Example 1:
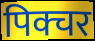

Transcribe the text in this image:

पिक्चर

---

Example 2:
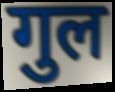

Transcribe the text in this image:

गुल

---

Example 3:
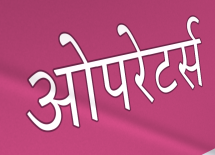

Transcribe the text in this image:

ओपरेटर्स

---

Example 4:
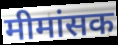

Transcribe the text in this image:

मीमांसक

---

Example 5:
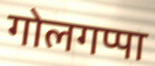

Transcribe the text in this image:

गोलगप्पा